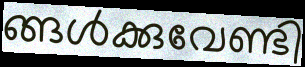
ങ്ങൾക്കുവേണ്ടി